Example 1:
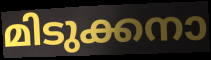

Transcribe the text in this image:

മിടുക്കനാ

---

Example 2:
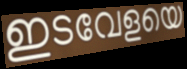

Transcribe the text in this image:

ഇടവേളയെ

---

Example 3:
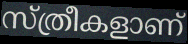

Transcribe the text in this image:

സ്ത്രീകളാണ്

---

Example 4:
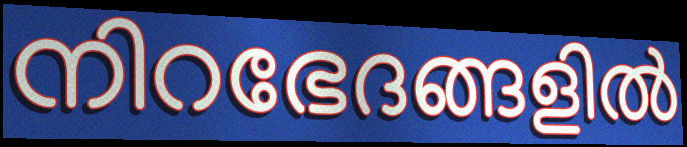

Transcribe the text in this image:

നിറഭേദങ്ങളിൽ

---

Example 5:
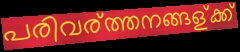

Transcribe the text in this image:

പരിവര്ത്തനങ്ങള്ക്ക്